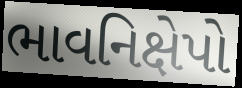
ભાવનિક્ષેપો